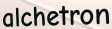
alchetron